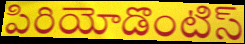
పిరియోడొంటిస్